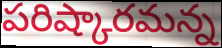
పరిష్కారమన్న